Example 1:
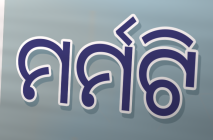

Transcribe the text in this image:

ମର୍ମଟି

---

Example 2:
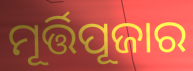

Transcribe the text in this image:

ମୂର୍ତ୍ତିପୂଜାର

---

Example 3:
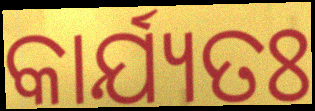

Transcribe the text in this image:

କାର୍ଯ୍ୟତଃ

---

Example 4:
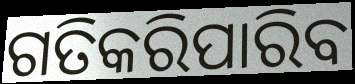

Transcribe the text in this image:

ଗତିକରିପାରିବ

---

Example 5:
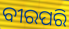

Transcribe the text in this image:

ବୀରପରି